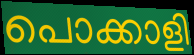
പൊക്കാളി